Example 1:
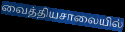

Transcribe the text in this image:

வைத்தியசாலையில்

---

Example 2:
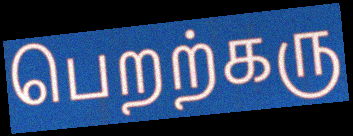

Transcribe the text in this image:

பெறற்கரு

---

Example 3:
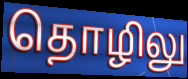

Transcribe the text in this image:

தொழிலு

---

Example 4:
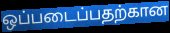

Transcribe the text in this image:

ஒப்படைப்பதற்கான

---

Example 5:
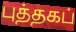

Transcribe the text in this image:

புத்தகப்